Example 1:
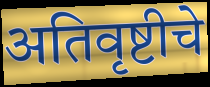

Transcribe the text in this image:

अतिवृष्टीचे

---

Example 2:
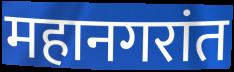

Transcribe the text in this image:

महानगरांत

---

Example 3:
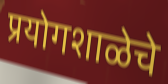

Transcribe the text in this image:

प्रयोगशाळेचे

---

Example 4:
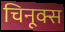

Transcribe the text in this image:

चिनूक्स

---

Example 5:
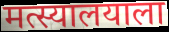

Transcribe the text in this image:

मत्स्यालयाला